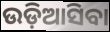
ଉଡ଼ିଆସିବା